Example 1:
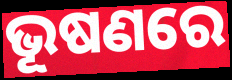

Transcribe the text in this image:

ଭୂଷଣରେ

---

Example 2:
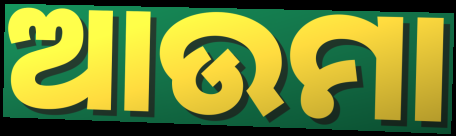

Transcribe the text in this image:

ଆଉମା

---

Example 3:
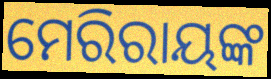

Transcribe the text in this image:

ମେରିରାୟଙ୍କ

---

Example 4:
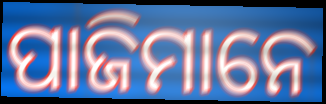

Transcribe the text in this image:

ପାଜିମାନେ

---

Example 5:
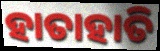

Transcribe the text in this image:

ହାତାହାତି